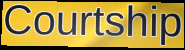
Courtship